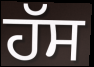
ਹੱਸ